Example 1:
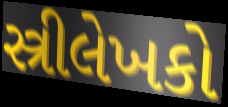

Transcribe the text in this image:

સ્ત્રીલેખકો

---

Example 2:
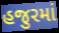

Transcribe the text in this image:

હજુરમાં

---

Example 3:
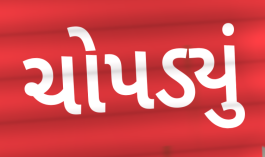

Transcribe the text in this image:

ચોપડ્યું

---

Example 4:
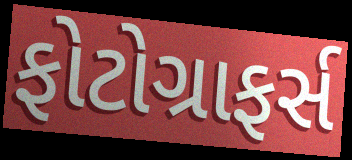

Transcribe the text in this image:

ફોટોગ્રાફર્સ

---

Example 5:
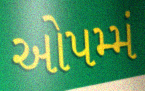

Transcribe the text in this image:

ઓપમ્મં